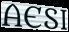
AESI